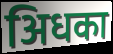
अिधका